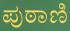
ಪುಠಾಣಿ